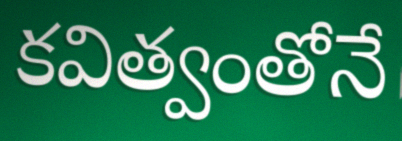
కవిత్వంతోనే